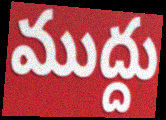
ముద్దు